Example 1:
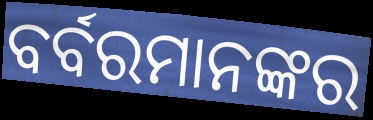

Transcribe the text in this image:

ବର୍ବରମାନଙ୍କର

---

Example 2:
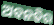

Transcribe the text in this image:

ଅବନତିର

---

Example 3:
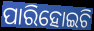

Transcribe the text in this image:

ପାରିହୋଇଚି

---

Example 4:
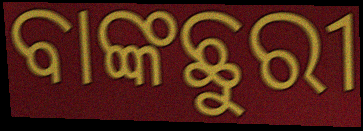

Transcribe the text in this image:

ବାଙ୍କଛୁରୀ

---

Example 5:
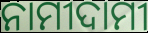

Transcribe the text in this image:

ନାମୀଦାମୀ